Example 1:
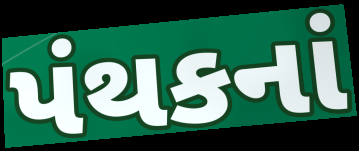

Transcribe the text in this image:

પંથકનાં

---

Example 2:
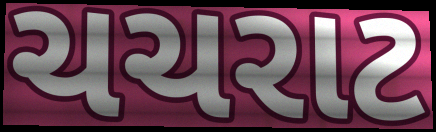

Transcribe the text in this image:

ચચરાટ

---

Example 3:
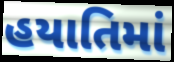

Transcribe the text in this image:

હયાતિમાં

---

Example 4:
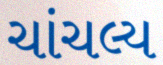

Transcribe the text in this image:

ચાંચલ્ય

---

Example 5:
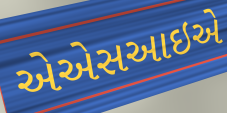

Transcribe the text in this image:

એએસઆઇએ